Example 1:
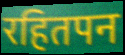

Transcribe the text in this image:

रहितपन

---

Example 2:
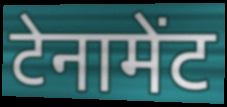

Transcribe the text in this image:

टेनामेंट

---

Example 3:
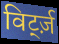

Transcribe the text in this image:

विर्ट्ज़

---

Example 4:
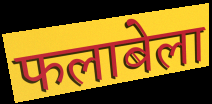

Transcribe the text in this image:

फलाबेला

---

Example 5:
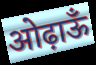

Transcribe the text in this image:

ओढ़ाऊँ